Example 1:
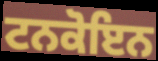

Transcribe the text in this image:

ਟਨਕੋਇਨ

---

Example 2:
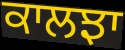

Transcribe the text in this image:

ਕਾਲਝਾ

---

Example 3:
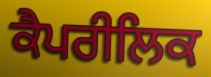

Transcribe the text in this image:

ਕੈਪਰੀਲਿਕ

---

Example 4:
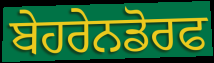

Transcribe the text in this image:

ਬੇਹਰੇਨਡੋਰਫ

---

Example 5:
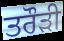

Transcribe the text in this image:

ਤਰੌੜੀ